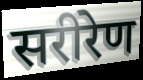
सरीरेण